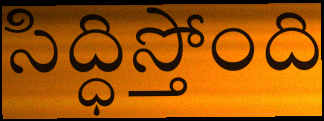
సిద్ధిస్తోంది